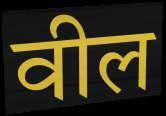
वील